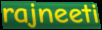
rajneeti